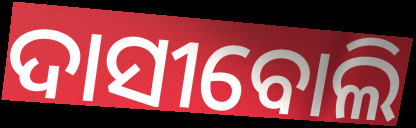
ଦାସୀବୋଲି